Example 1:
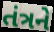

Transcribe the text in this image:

તંત્રને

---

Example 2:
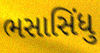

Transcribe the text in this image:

ભસાસિંધુ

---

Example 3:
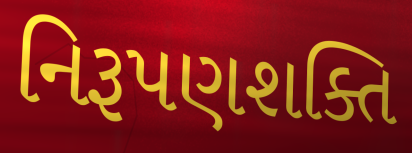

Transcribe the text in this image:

નિરૂપણશક્તિ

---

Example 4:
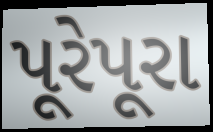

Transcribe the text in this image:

પૂરેપૂરા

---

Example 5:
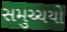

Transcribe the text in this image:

સમુચ્ચયો